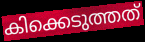
കിക്കെടുത്തത്